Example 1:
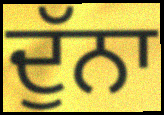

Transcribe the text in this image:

ਦੁੱਨਾ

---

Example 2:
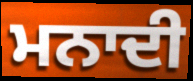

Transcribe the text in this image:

ਮਨਾਦੀ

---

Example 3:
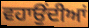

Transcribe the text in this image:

ਵਹਾਉਂਦੀਆਂ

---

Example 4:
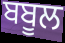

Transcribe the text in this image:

ਬਬੂਲ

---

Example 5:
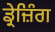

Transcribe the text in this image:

ਡ੍ਰੇਜ਼ਿੰਗ